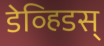
डेव्हिडस्